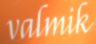
valmik